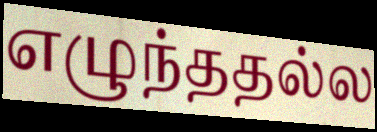
எழுந்ததல்ல